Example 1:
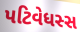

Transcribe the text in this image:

પટિવેધસ્સ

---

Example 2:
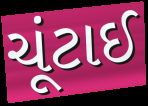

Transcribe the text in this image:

ચૂંટાઈ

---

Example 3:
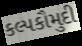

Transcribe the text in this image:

કલ્પકૌમુદી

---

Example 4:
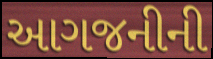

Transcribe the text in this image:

આગજનીની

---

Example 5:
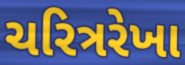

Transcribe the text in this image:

ચરિત્રરેખા